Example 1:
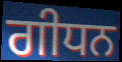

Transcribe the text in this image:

ਗੀਧਨ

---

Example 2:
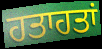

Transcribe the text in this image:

ਹਤਾਹਤਾਂ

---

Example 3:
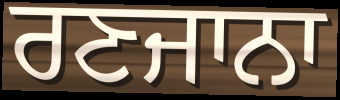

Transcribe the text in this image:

ਰਣਜਾਨਾ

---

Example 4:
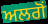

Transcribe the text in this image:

ਅਲਗੋਂ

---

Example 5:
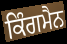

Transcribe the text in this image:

ਕਿੰਗਮੈਨ